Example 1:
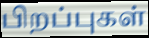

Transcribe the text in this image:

பிறப்புகள்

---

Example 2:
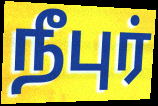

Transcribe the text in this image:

நீபுர்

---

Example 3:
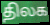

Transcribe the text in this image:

திலக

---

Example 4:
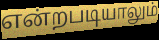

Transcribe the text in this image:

என்றபடியாலும்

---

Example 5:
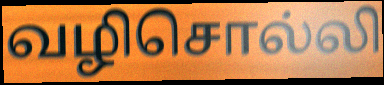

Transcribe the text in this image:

வழிசொல்லி